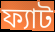
ফ্যাট